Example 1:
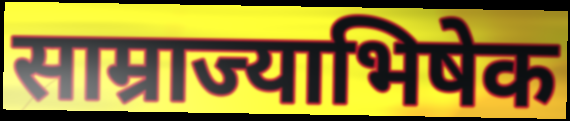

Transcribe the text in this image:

साम्राज्याभिषेक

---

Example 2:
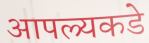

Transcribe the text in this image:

आपल्यकडे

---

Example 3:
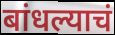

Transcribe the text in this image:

बांधल्याचं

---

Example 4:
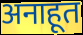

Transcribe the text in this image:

अनाहूत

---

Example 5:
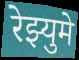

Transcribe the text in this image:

रेझ्युमे